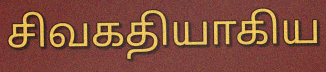
சிவகதியாகிய